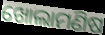
ଖୋଲାମଣିଷ